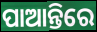
ପାଆନ୍ତିରେ